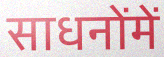
साधनोंमें